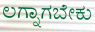
ಲಗ್ನಾಗಬೇಕು